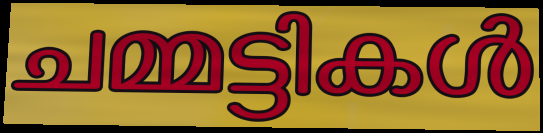
ചമ്മട്ടികൾ